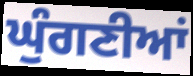
ਘੁੰਗਣੀਆਂ